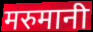
मरुमानी